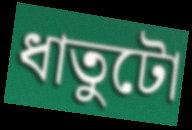
ধাতুটো